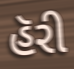
હૅરી